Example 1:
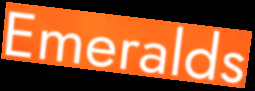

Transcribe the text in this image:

Emeralds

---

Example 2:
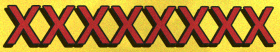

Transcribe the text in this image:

xxxxxxxx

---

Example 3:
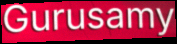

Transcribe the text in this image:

Gurusamy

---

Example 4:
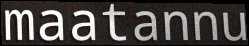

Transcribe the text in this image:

maatannu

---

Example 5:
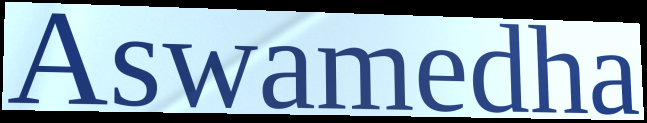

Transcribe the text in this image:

Aswamedha